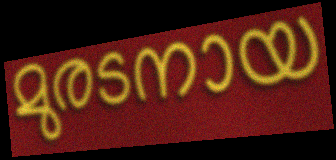
മുരടനായ